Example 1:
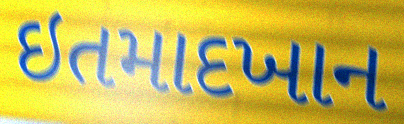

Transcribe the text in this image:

ઇતમાદખાન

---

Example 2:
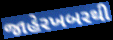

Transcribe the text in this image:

જાહેરખબરથી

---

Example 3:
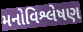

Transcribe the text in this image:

મનોવિશ્લેષણ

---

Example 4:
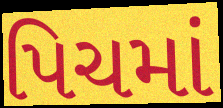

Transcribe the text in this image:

પિચમાં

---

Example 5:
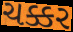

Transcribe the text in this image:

ચક્કર